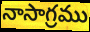
నాసాగ్రము